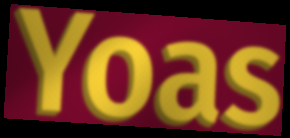
Yoas